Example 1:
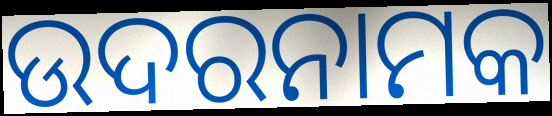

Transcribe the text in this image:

ଉଦରନାମକ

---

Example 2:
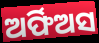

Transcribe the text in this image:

ଅର୍ଫିଅସ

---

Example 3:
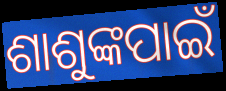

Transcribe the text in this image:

ଶାଶୁଙ୍କପାଇଁ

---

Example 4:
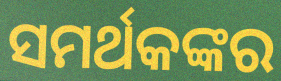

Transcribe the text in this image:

ସମର୍ଥକଙ୍କର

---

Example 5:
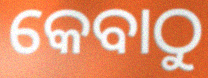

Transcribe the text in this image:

କେବାଠୁ